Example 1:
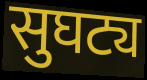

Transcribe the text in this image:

सुघट्य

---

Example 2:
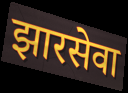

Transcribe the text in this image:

झारसेवा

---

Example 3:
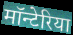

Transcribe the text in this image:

मॉन्टेरिया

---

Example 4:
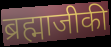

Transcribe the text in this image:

ब्रह्माजीकी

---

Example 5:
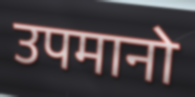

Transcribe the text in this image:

उपमानो